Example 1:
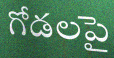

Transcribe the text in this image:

గోడలపై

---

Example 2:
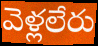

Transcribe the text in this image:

వెళ్లలేరు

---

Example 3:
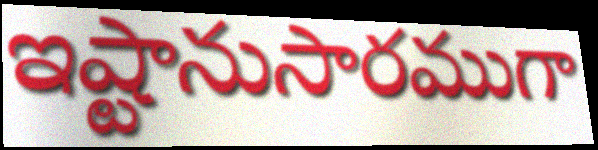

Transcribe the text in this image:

ఇష్టానుసారముగా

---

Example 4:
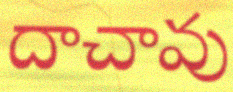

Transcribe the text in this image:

దాచావు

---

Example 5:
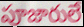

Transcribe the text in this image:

పూజారులే